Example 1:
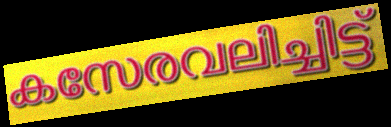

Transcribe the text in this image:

കസേരവലിച്ചിട്ട്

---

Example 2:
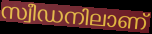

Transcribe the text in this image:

സ്വീഡനിലാണ്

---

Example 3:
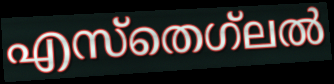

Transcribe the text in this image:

എസ്തെഗ്‌ലൽ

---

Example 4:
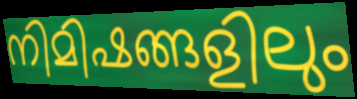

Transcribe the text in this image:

നിമിഷങ്ങളിലും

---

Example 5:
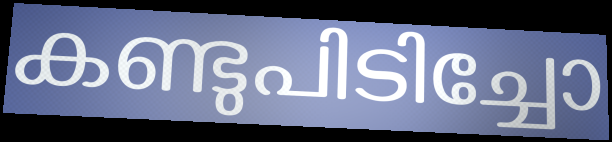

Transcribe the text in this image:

കണ്ടുപിടിച്ചോ